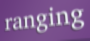
ranging